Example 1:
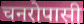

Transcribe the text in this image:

चनरोपासी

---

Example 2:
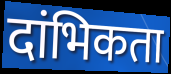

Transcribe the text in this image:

दांभिकता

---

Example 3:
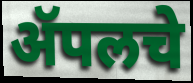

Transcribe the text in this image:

ॲपलचे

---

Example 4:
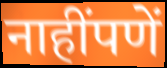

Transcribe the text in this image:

नाहींपणें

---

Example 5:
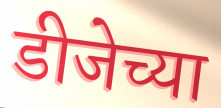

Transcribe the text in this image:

डीजेच्या